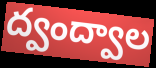
ద్వంద్వాల